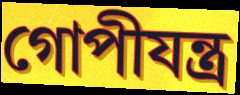
গোপীযন্ত্র